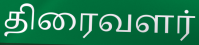
திரைவளர்